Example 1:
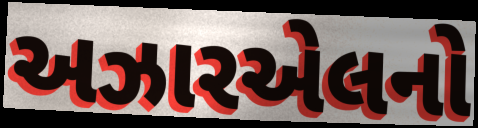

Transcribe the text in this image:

અઝારએલનો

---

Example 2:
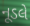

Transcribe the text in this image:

નૂડલે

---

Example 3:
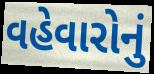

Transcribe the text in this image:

વહેવારોનું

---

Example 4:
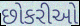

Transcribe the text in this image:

છોકરીઓ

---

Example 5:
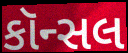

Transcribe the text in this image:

કૉન્સલ